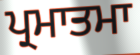
ਪ੍ਰਮਾਤਮਾ